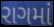
રાગમાં